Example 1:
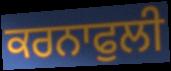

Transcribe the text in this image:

ਕਰਨਾਫੁਲੀ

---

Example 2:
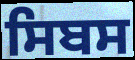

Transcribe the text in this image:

ਸਿਬਸ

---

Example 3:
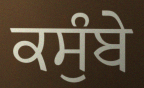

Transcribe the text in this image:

ਕਸੁੰਬੇ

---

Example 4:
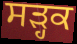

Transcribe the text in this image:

ਸੜ੍ਹਕ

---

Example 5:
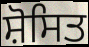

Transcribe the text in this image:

ਸ਼ੋਸਿਤ